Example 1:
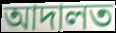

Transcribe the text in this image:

আদালত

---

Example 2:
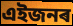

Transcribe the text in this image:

এইজনৰ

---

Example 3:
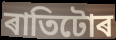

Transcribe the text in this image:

ৰাতিটোৰ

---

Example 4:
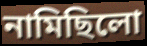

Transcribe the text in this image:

নামিছিলো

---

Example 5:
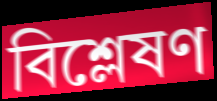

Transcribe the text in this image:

বিশ্লেষণ